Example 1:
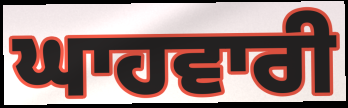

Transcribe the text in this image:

ਘਾਹਵਾਰੀ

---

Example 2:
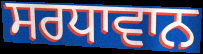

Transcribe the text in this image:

ਸਰਧਾਵਾਨ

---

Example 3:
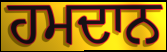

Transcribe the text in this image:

ਹਮਦਾਨ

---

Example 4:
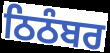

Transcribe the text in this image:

ਠਿਠੰਬਰ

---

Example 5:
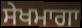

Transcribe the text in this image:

ਸੇਖਮਾਗਾ